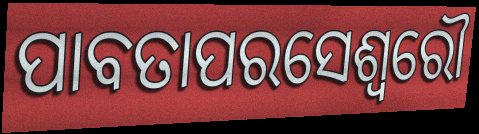
ପାବତାପରସେଶ୍ୱରୌ